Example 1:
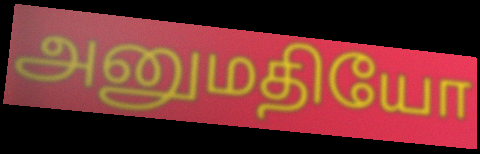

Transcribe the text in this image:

அனுமதியோ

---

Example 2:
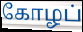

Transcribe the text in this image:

கோழப்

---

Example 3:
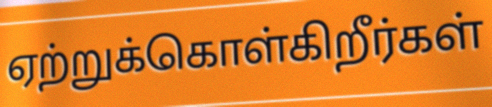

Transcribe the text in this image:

ஏற்றுக்கொள்கிறீர்கள்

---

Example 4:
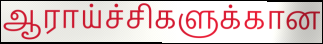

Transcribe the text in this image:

ஆராய்ச்சிகளுக்கான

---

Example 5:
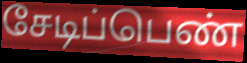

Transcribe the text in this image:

சேடிப்பெண்